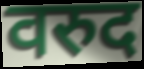
वरुद